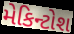
મેકિન્ટોશ